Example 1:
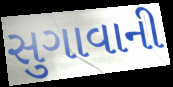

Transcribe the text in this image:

સુગાવાની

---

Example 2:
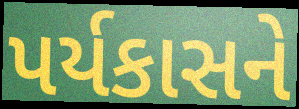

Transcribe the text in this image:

પર્યકાસને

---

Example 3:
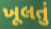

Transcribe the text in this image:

ખૂલતું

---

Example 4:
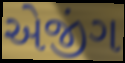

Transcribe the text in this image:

એજીંગ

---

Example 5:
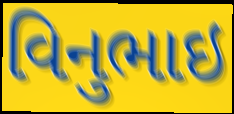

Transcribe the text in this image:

વિનુભાઇ